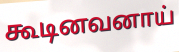
கூடினவனாய்